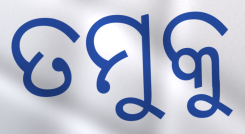
ତମୁକୁ